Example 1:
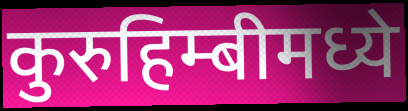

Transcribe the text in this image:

कुरुहिम्बीमध्ये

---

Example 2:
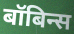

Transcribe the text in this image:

बॉबिन्स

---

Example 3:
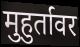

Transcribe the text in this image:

मुहुर्तावर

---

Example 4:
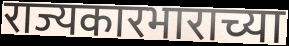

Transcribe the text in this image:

राज्यकारभाराच्या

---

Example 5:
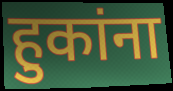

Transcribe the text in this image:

हुकांना